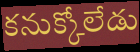
కనుక్కోలేడు